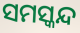
ସମସ୍କନ୍ଦ